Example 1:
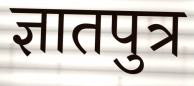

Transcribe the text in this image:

ज्ञातपुत्र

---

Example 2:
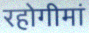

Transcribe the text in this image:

रहोगीमां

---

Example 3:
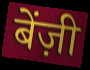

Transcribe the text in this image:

बेंज़ी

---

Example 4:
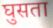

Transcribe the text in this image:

घुसता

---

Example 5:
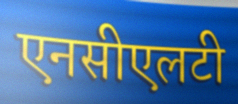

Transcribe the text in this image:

एनसीएलटी